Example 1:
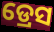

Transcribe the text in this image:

ଡ୍ରେସ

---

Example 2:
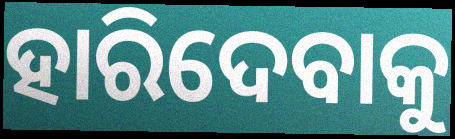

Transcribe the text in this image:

ହାରିଦେବାକୁ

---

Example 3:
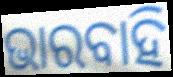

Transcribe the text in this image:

ଭାରବାହି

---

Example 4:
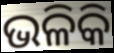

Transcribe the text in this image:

ଭଳିକି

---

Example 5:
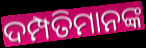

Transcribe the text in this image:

ଦମ୍ପତିମାନଙ୍କ